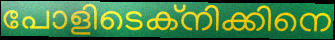
പോളിടെക്നിക്കിനെ